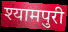
श्यामपुरी